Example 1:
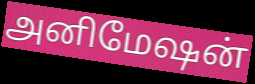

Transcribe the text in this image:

அனிமேஷன்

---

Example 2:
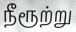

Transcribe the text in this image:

நீரூற்று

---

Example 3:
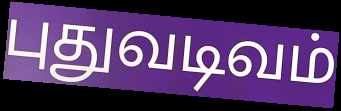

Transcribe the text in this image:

புதுவடிவம்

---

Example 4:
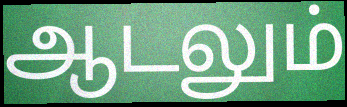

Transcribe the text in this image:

ஆடலும்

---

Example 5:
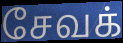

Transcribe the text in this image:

சேவக்